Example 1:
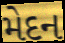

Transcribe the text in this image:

મેદન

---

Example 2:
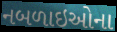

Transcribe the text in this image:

નબળાઇઓના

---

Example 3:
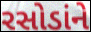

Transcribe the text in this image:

રસોડાંને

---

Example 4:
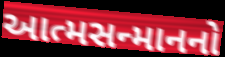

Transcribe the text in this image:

આત્મસન્માનનો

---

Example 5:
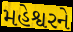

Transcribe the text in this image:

મહેશ્વરને